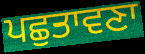
ਪਛੁਤਾਵਣਾ